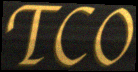
TCO